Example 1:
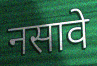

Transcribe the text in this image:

नसावे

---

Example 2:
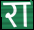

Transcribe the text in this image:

रा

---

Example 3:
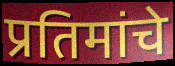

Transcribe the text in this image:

प्रतिमांचे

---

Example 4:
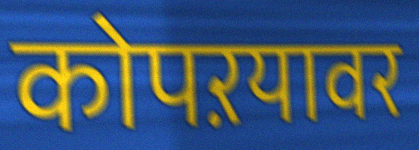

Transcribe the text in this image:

कोपऱयावर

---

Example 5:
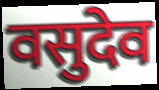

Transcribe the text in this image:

वसुदेव